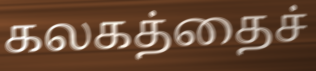
கலகத்தைச்